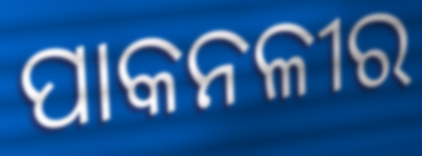
ପାକନଳୀର